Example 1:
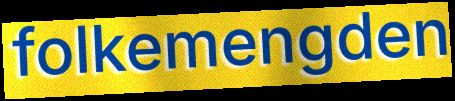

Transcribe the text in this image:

folkemengden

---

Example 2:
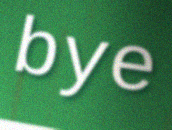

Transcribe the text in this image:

bye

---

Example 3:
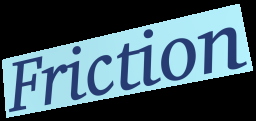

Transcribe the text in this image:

Friction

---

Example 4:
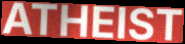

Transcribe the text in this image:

ATHEIST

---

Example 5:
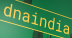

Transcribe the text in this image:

dnaindia